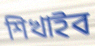
শিখাইব